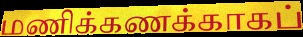
மணிக்கணக்காகப்